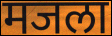
मजला